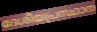
ദേശീയപ്രസ്ഥാന